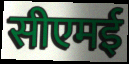
सीएमई